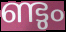
ണ്ടും